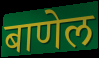
बाणेल